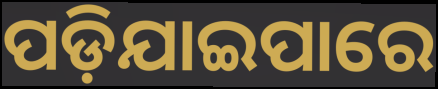
ପଡ଼ିଯାଇପାରେ